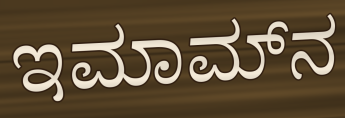
ಇಮಾಮ್‍ನ